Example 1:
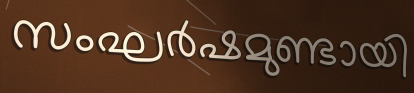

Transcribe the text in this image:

സംഘർഷമുണ്ടായി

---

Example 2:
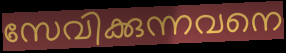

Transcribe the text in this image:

സേവിക്കുന്നവനെ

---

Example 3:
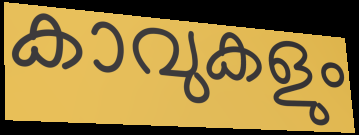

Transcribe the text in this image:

കാവുകളും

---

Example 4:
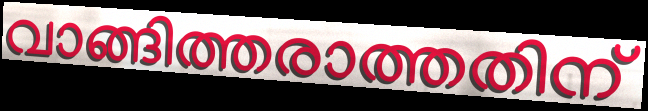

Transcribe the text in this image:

വാങ്ങിത്തരാത്തതിന്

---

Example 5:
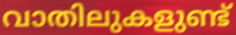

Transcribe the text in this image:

വാതിലുകളുണ്ട്